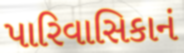
પારિવાસિકાનં